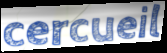
cercueil